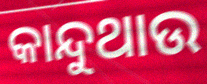
କାନ୍ଦୁଥାଉ